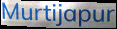
Murtijapur